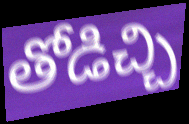
తోడిచ్చి